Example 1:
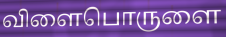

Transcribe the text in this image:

விளைபொருளை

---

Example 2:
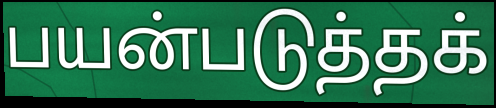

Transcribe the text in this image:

பயன்படுத்தக்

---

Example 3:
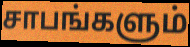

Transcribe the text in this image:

சாபங்களும்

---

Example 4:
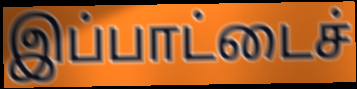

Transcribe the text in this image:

இப்பாட்டைச்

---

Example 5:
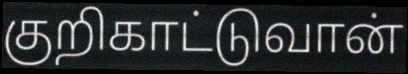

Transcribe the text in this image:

குறிகாட்டுவான்